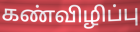
கண்விழிப்பு